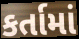
કર્તામાં